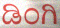
ಡಿಂಗಿ